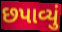
છપાવ્યું